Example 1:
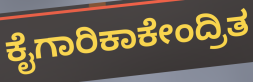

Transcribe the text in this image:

ಕೈಗಾರಿಕಾಕೇಂದ್ರಿತ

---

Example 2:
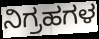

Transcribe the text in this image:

ನಿಗ್ರಹಗಳ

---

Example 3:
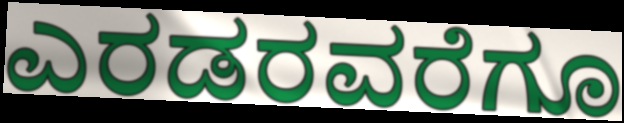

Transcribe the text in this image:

ಎರಡರವರೆಗೂ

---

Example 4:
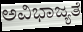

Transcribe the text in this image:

ಅವಿಭಾಜ್ಯತೆ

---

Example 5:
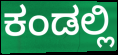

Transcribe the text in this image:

ಕಂಡಲ್ಲಿ